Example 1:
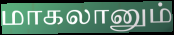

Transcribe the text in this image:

மாகலானும்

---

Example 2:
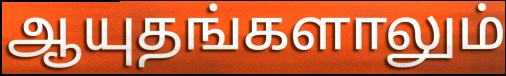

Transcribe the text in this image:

ஆயுதங்களாலும்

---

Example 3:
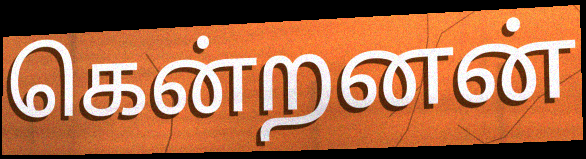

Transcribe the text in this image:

கென்றனன்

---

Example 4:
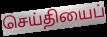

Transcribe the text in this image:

செய்தியைப்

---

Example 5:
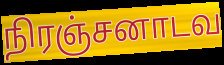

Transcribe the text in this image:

நிரஞ்சனாடவ